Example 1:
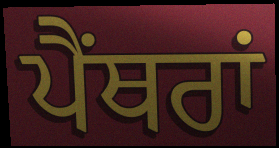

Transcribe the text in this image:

ਪੈਂਥਰਾਂ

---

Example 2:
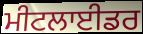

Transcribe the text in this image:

ਮੀਟਲਾਈਡਰ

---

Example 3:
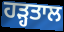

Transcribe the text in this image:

ਹੜ੍ਹਤਾਲ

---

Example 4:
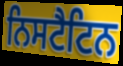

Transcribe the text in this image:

ਨਿਸਟੈਟਿਨ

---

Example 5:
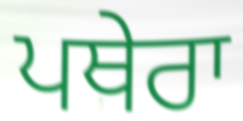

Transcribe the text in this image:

ਪਥੇਰਾ